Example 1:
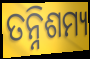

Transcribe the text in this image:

ତନ୍ନିଶମ୍ୟ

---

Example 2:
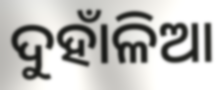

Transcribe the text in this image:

ଦୁହାଁଳିଆ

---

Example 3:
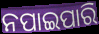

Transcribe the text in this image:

ନପାଇପାରି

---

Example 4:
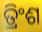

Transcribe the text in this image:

ତ୍ରିଂଶ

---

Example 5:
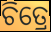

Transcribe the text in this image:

ଚିତ୍ରେ